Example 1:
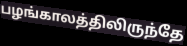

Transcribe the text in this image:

பழங்காலத்திலிருந்தே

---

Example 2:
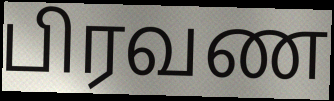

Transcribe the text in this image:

பிரவண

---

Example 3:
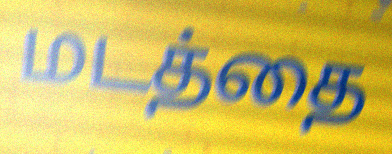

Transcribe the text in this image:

மடத்தை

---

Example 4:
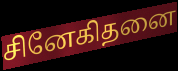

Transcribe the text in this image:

சினேகிதனை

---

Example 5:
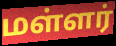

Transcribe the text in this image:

மள்ளர்